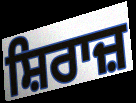
ਸ਼ਿਰਾਜ਼